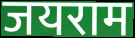
जयराम